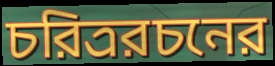
চরিত্ররচনের